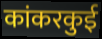
कांकरकुई